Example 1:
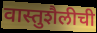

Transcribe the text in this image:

वास्तुशैलीची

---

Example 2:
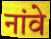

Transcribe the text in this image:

नांवे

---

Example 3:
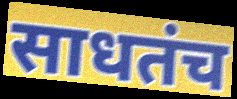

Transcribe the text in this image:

साधतंच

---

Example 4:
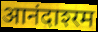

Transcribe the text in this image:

आनंदाश्रम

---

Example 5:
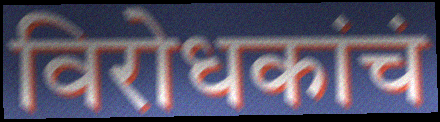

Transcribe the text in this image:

विरोधकांचं